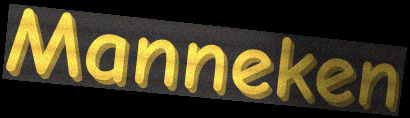
Manneken